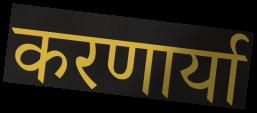
करणार्या